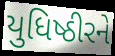
યુધિષ્ઠીરને